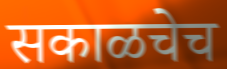
सकाळचेच